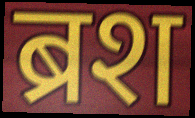
ब्रश